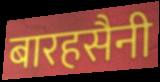
बारहसैनी